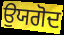
ਉਯਗੋਦ